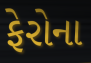
ફેરોના